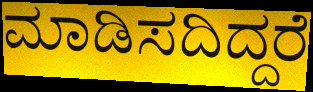
ಮಾಡಿಸದಿದ್ದರೆ